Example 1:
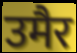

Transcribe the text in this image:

उमैर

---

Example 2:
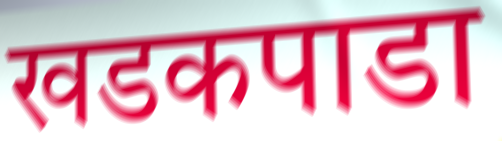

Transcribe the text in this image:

खडकपाडा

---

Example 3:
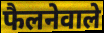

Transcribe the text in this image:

फैलनेवाले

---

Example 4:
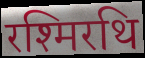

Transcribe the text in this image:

रश्मिरथि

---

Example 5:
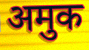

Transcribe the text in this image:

अमुक